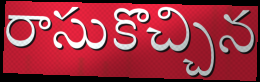
రాసుకొచ్చిన